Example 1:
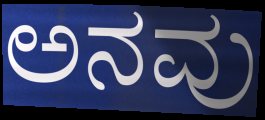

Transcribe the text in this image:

ಅನವು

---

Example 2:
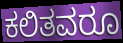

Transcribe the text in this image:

ಕಲಿತವರೂ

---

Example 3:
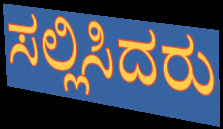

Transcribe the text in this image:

ಸಲ್ಲಿಸಿದರು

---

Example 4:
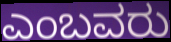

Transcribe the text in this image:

ಎಂಬವರು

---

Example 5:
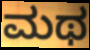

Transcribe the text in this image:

ಮಥ